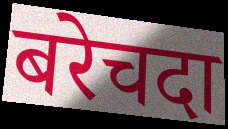
बरेचदा